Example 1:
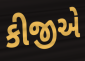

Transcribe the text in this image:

કીજીએ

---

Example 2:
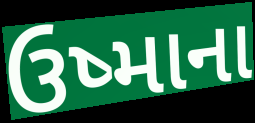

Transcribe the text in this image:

ઉષ્માના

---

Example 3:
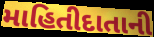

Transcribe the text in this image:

માહિતીદાતાની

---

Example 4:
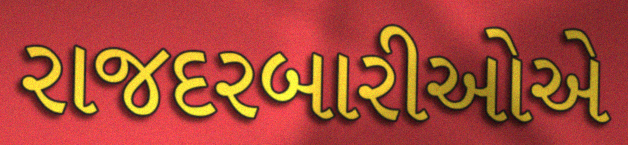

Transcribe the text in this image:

રાજદરબારીઓએ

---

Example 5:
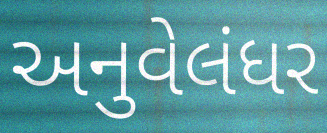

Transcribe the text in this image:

અનુવેલંધર